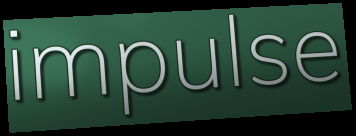
impulse